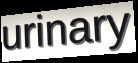
urinary